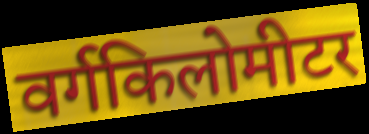
वर्गकिलोमीटर